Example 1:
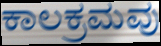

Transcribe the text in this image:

ಕಾಲಕ್ರಮವು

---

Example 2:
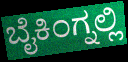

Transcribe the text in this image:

ಬೈಕಿಂಗ್ನಲ್ಲಿ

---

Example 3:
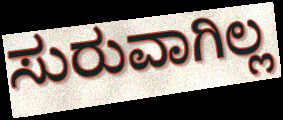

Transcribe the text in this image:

ಸುರುವಾಗಿಲ್ಲ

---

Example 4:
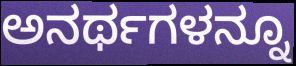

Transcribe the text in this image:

ಅನರ್ಥಗಳನ್ನೂ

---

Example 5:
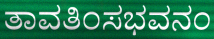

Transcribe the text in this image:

ತಾವತಿಂಸಭವನಂ